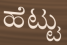
ಹೆಟ್ಟು